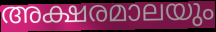
അക്ഷരമാലയും